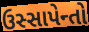
ઉસ્સાપેન્તો